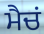
ਮੈਚਂ